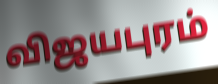
விஜயபுரம்